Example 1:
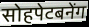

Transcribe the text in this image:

सोहपेटबनेंग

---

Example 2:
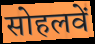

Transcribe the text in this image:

सोहलवें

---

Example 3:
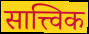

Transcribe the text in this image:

सात्त्विक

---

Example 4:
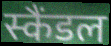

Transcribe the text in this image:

स्कैंडल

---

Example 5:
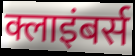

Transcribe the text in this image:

क्लाइंबर्स